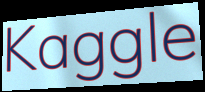
Kaggle